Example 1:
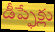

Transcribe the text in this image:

డీప్ఫేక్లు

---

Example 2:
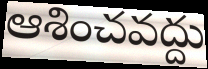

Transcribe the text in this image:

ఆశించవద్దు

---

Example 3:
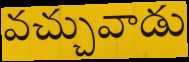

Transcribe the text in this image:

వచ్చువాడు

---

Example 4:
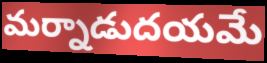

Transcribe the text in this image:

మర్నాడుదయమే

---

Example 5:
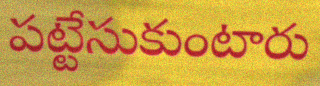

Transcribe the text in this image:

పట్టేసుకుంటారు